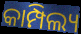
କାମ୍ପିଲ୍ୟ